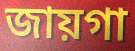
জায়গা